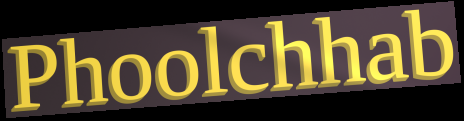
Phoolchhab